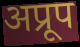
अप्रूप